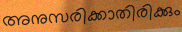
അനുസരിക്കാതിരിക്കും